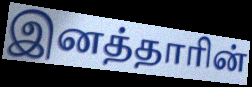
இனத்தாரின்